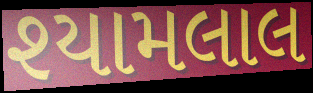
શ્યામલાલ